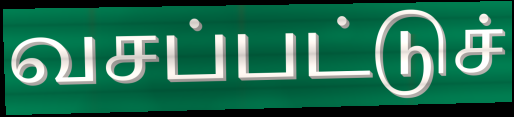
வசப்பட்டுச்